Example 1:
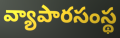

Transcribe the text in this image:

వ్యాపారసంస్థ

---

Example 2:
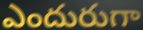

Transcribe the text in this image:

ఎందురుగా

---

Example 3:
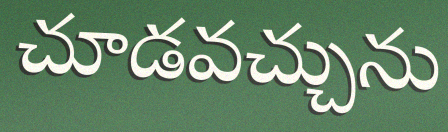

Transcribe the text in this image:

చూడవచ్చును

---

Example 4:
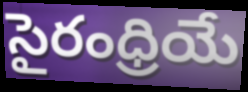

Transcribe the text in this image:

సైరంధ్రియే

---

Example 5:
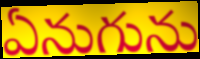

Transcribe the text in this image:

ఏనుగును